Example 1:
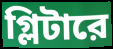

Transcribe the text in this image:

গ্লিটারে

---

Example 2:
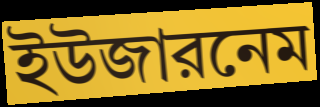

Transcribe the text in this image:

ইউজারনেম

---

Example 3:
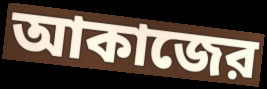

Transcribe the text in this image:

আকাজের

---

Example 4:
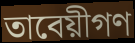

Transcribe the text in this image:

তাবেয়ীগণ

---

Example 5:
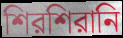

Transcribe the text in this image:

শিরশিরানি